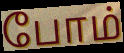
போம்